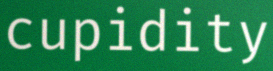
cupidity